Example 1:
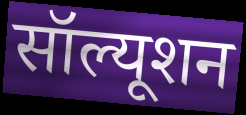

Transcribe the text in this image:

सॉल्यूशन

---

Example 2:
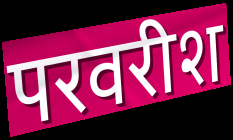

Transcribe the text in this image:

परवरीश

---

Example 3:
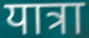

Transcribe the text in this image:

यात्रा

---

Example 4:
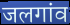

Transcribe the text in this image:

जलगांव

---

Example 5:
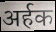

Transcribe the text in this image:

अर्हक